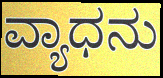
ವ್ಯಾಧನು